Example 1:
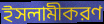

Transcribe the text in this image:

ইসলামীকরণ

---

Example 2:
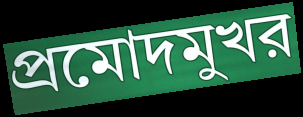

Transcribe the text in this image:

প্রমোদমুখর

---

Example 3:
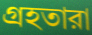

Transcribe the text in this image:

গ্রহতারা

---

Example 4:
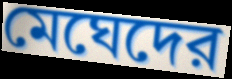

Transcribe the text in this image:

মেঘেদের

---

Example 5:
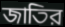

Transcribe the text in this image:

জাতির